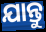
ଯାନ୍ତୁ